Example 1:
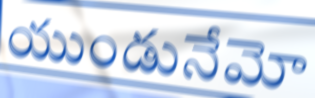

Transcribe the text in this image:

యుండునేమో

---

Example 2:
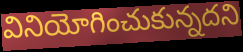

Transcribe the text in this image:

వినియోగించుకున్నదని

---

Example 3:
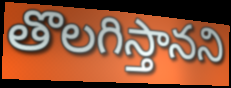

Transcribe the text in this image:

తొలగిస్తానని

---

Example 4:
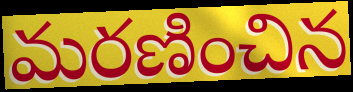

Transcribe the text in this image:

మరణించిన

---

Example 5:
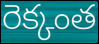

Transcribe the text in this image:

రెక్కంత